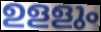
ഉളളും